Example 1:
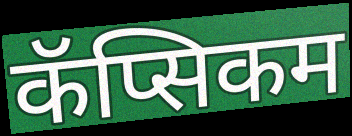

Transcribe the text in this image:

कॅप्सिकम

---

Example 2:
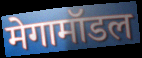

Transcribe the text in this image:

मेगामॉडल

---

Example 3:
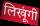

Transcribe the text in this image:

लिखूंगी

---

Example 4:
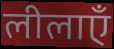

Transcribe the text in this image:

लीलाएँ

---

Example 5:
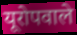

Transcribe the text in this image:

यूरोपवाले